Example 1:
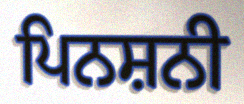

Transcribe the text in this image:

ਪਿਨਸ਼ਨੀ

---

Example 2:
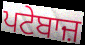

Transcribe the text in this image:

ਪਟੇਬਾਜ਼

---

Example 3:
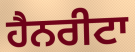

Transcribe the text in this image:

ਹੈਨਰੀਟਾ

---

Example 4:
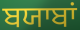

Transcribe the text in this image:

ਬਯਾਬਾਂ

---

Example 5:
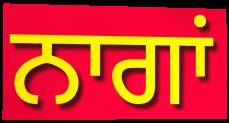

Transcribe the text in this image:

ਨਾਗਾਂ